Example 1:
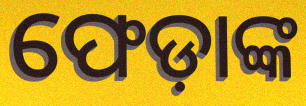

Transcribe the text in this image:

ଫେଡ଼ାଙ୍କ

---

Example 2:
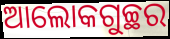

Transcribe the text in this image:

ଆଲୋକଗୁଚ୍ଛର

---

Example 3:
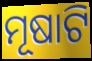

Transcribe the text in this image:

ମୂଷାଟି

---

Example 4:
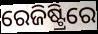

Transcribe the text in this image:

ରେଜିଷ୍ଟ୍ରିରେ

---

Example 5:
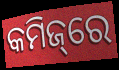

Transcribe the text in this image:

କମିଜ୍‌ରେ